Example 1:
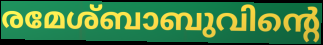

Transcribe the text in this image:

രമേശ്ബാബുവിന്റെ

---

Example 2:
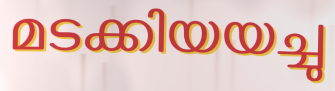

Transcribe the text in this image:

മടക്കിയയച്ചു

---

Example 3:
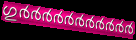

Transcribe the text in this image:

ഗുർർർർർർർർർർർ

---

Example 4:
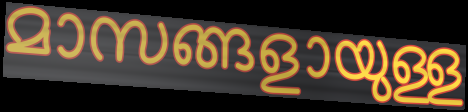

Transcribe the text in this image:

മാസങ്ങളായുള്ള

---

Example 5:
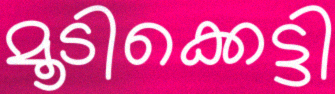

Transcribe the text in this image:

മൂടിക്കെട്ടി